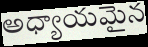
అధ్యాయమైన